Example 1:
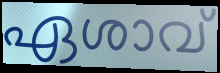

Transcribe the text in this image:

ഏശാവ്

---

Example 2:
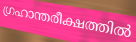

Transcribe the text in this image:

ഗ്രഹാന്തരീക്ഷത്തിൽ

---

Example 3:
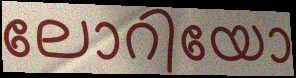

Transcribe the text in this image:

ലോറിയോ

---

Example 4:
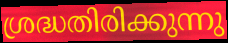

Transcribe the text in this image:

ശ്രദ്ധതിരിക്കുന്നു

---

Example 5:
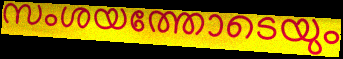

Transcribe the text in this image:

സംശയത്തോടെയും